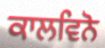
ਕਾਲਵਿਨੋ